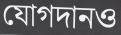
যোগদানও